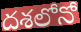
దశలోనో